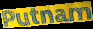
Putnam